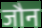
जौन